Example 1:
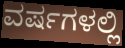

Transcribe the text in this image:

ವರ್ಷಗಳಲ್ಲಿ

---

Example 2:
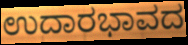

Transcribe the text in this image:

ಉದಾರಭಾವದ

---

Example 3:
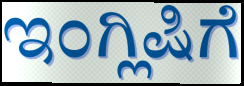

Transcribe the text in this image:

ಇಂಗ್ಲಿಷಿಗೆ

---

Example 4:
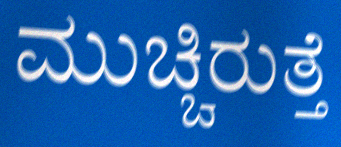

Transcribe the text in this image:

ಮುಚ್ಚಿರುತ್ತೆ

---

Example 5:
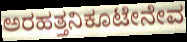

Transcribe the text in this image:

ಅರಹತ್ತನಿಕೂಟೇನೇವ